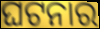
ଘଟନାର